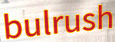
bulrush